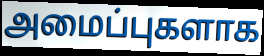
அமைப்புகளாக